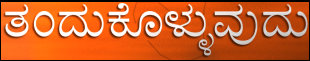
ತಂದುಕೊಳ್ಳುವುದು